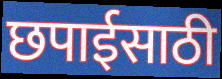
छपाईसाठी